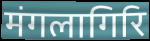
मंगलागिरि